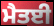
ਮੈਤਈ